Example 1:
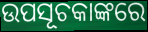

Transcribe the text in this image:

ଉପସୂଚକାଙ୍କରେ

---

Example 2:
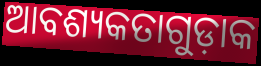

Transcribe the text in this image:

ଆବଶ୍ୟକତାଗୁଡ଼ାକ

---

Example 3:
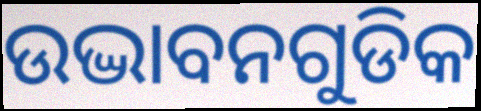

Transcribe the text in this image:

ଉଦ୍ଭାବନଗୁଡିକ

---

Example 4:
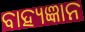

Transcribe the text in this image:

ବାହ୍ୟଜ୍ଞାନ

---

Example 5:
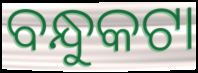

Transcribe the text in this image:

ବନ୍ଧୁକଟା